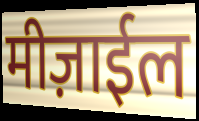
मीज़ाईल